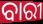
ବାରୀ